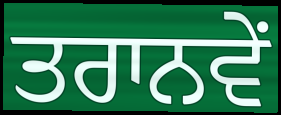
ਤਰਾਨਵੇਂ